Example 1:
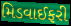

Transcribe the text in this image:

મિડવાઈફરી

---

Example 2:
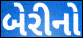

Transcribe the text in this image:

બેરીનો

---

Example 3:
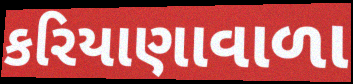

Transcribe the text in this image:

કરિયાણાવાળા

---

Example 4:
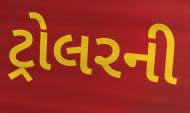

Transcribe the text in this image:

ટ્રોલરની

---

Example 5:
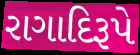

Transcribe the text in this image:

રાગાદિરૂપે